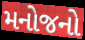
મનોજનો